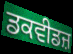
ਡਕਵੀਡਜ਼